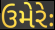
ઉમેરેઃ